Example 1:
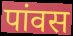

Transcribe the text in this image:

पांवस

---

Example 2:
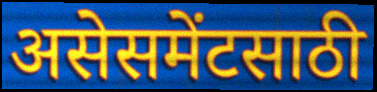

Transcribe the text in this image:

असेसमेंटसाठी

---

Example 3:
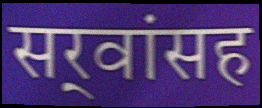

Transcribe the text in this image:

सर्वांसह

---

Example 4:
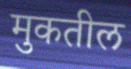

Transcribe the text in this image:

मुकतील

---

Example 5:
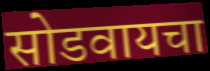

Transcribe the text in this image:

सोडवायचा